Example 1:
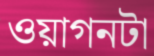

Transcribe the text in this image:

ওয়াগনটা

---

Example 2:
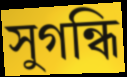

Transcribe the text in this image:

সুগন্ধি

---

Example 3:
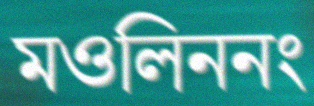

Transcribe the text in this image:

মওলিননং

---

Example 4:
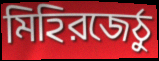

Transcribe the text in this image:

মিহিরজেঠু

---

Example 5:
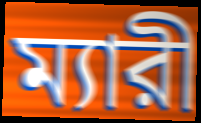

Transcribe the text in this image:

ম্যারী